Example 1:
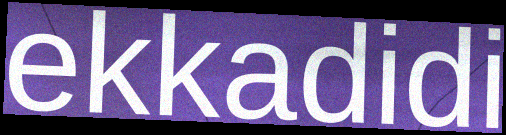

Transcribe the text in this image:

ekkadidi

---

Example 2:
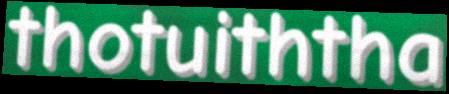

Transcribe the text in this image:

thotuiththa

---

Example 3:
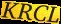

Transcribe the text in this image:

KRCL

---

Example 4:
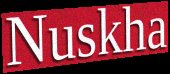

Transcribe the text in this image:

Nuskha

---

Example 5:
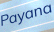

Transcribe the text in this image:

Payana